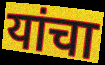
यांचा